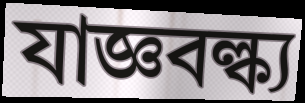
যাজ্ঞবল্ক্য